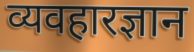
व्यवहारज्ञान